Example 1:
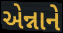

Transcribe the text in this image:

એન્નાને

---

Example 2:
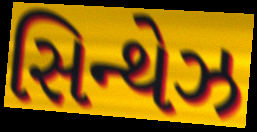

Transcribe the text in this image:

સિન્થેઝ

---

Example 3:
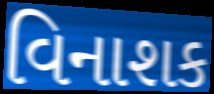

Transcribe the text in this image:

વિનાશક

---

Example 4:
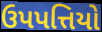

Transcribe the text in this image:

ઉપપત્તિયો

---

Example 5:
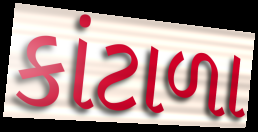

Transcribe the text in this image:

કાંટાળા